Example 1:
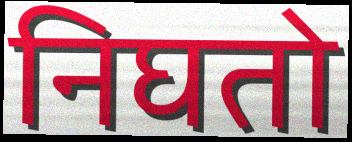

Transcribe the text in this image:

निघतो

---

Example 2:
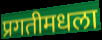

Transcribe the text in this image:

प्रगतीमधला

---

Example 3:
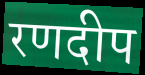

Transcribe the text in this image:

रणदीप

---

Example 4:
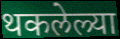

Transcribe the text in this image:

थकलेल्या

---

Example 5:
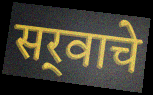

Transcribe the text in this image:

सर्वाचे